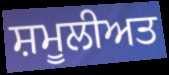
ਸ਼ਮੂਲੀਅਤ